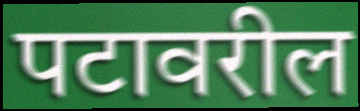
पटावरील